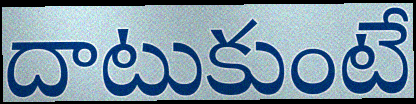
దాటుకుంటే